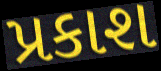
પ્રકાશ